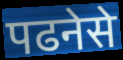
पढनेसे